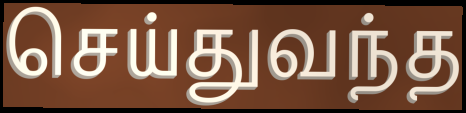
செய்துவந்த